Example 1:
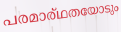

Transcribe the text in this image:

പരമാര്ഥതയോടും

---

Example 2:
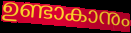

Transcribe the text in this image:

ഉണ്ടാകാനും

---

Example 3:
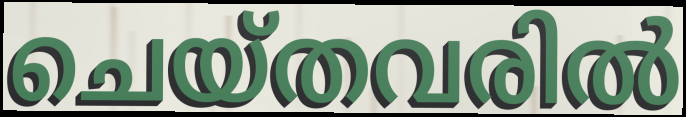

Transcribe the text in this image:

ചെയ്തവരിൽ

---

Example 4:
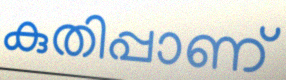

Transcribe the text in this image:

കുതിപ്പാണ്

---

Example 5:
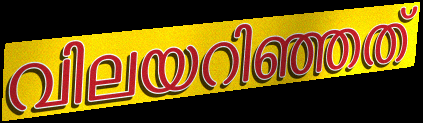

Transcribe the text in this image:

വിലയറിഞ്ഞത്